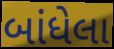
બાંધેલા